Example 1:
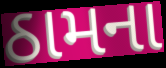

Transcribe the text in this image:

ઠામના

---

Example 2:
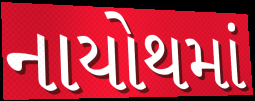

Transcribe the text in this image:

નાયોથમાં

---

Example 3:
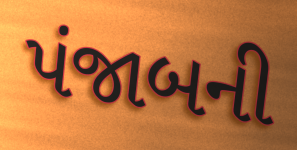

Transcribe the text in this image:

પંજાબની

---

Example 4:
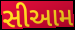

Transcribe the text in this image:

સીઆમ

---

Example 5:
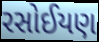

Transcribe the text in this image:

રસોઈયણ